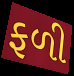
ફળી